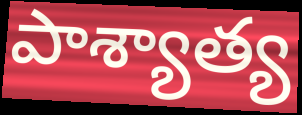
పాశ్యాత్య